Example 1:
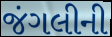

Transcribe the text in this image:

જંગલીની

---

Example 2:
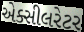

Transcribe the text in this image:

એક્સીલરેટર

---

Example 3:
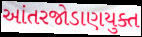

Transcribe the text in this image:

આંતરજોડાણયુક્ત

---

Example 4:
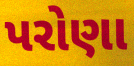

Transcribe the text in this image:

પરોણા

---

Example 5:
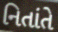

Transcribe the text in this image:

નિતાંતે